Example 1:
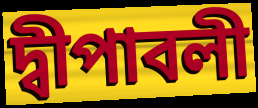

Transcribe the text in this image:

দ্বীপাবলী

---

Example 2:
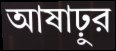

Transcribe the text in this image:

আষাঢ়ুর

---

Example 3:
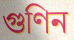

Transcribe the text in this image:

গুণিন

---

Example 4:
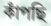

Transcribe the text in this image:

কাঁপছি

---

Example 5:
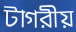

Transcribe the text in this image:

টাগরীয়